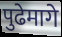
पुढेमागे